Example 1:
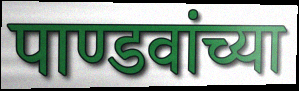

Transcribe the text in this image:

पाण्डवांच्या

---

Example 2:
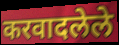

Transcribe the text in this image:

करवादलेले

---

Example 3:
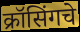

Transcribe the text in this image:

क्रॉसिंगचे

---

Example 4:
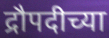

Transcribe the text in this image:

द्रौपदीच्या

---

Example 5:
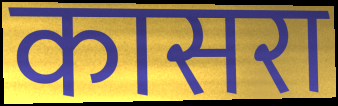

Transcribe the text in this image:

कासरा